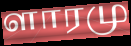
ளாரமு